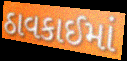
ઠાવકાઈમાં